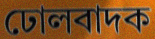
ঢোলবাদক